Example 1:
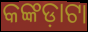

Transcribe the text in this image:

କଙ୍କଡ଼ାଟା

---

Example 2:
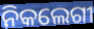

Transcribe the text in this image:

ନିକଲେଗୀ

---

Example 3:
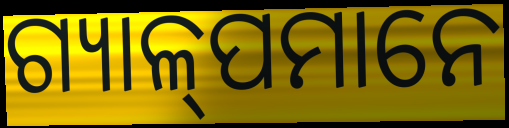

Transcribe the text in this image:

ଗ୍ୟାଳ୍‍ପମାନେ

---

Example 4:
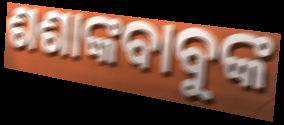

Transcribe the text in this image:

ଶଶାଙ୍କବାବୁଙ୍କ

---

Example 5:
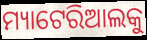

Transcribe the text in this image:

ମ୍ୟାଟେରିଆଲକୁ